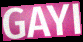
GAYI